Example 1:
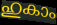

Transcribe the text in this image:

ഹുകാം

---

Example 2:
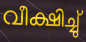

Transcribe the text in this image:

വീക്ഷിച്ചു്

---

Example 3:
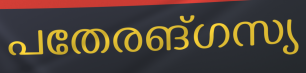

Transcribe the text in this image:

പതേരങ്ഗസ്യ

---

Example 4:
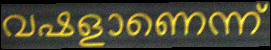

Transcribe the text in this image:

വഷളാണെന്ന്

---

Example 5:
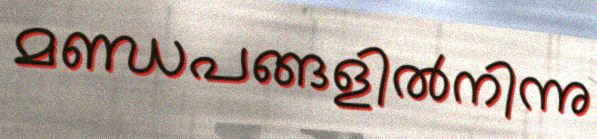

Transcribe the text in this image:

മണ്ഡപങ്ങളിൽനിന്നു